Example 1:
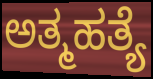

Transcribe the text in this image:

ಅತ್ಮಹತ್ಯೆ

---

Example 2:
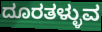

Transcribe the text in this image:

ದೂರತಳ್ಳುವ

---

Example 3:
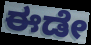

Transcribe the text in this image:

ಈಡೇ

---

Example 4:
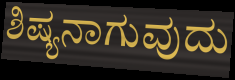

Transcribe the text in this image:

ಶಿಷ್ಯನಾಗುವುದು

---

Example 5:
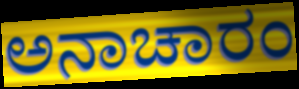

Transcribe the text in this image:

ಅನಾಚಾರಂ